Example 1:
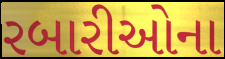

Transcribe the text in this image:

રબારીઓના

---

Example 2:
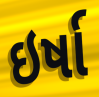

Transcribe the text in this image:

ઇર્ષા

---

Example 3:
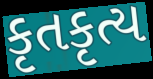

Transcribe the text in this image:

કૃતકૃત્ય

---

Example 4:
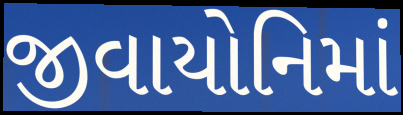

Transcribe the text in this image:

જીવાયોનિમાં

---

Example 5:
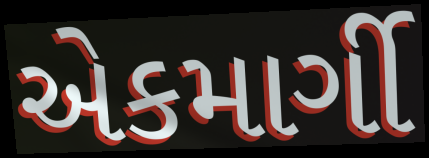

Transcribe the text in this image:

એકમાર્ગી